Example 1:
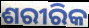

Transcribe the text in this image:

ଶରୀରିକ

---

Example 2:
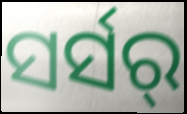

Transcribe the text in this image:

ସର୍ସର୍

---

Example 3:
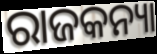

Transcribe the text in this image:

ରାଜକନ୍ୟା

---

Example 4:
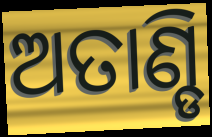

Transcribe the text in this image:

ଅତାଣ୍ଡି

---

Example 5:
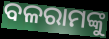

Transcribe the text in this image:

ବଳରାମଙ୍କୁ